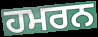
ਹਮਰਨ